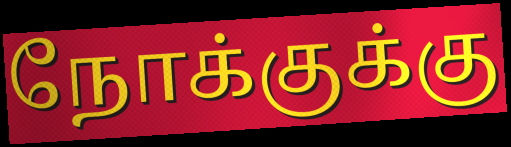
நோக்குக்கு